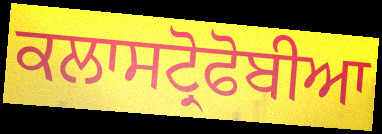
ਕਲਾਸਟ੍ਰੋਫੋਬੀਆ